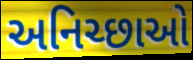
અનિચ્છાઓ